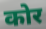
कोर